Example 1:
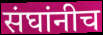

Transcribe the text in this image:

संघांनीच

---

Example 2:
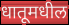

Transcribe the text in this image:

धातूमधील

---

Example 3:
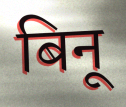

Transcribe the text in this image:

बिनू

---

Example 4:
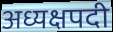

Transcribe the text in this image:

अध्यक्षपदी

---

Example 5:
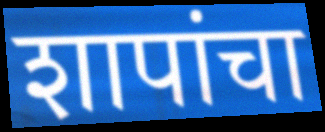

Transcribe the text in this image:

शापांचा